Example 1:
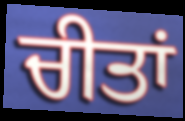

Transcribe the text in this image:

ਚੀਤਾਂ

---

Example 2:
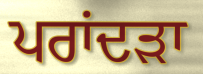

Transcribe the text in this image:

ਪਰਾਂਦੜਾ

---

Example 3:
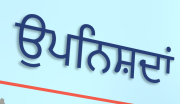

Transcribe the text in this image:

ਉਪਨਿਸ਼ਦਾਂ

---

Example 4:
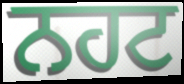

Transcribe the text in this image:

ਨਹਟ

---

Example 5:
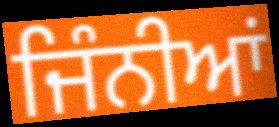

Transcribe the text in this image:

ਜਿੰਨੀਆਂ